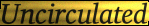
Uncirculated